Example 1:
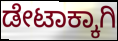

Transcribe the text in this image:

ಡೇಟಾಕ್ಕಾಗಿ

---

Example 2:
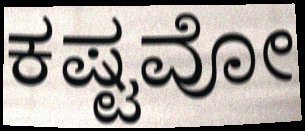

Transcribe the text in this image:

ಕಷ್ಟವೋ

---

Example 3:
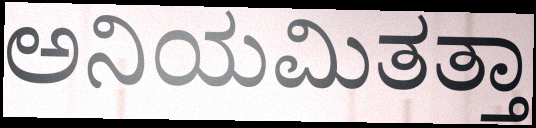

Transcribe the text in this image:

ಅನಿಯಮಿತತ್ತಾ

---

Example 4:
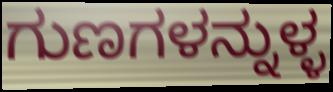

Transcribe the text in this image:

ಗುಣಗಳನ್ನುಳ್ಳ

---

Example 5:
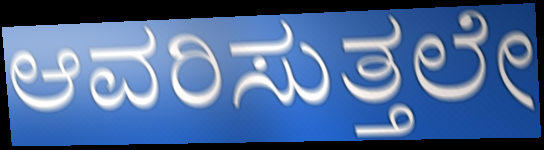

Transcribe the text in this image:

ಆವರಿಸುತ್ತಲೇ